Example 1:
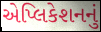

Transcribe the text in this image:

એપ્લિકેશનનું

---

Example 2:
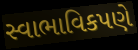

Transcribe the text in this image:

સ્વાભાવિકપણે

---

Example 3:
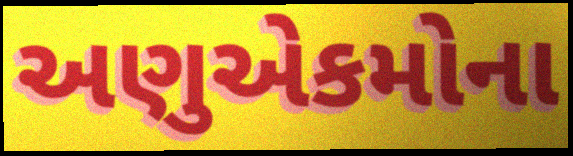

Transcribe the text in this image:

અણુએકમોના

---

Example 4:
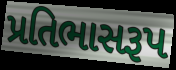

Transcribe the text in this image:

પ્રતિભાસરૂપ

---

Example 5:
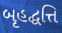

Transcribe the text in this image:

બૃહદ્ઘત્તિ